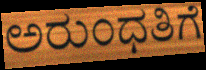
ಅರುಂಧತಿಗೆ